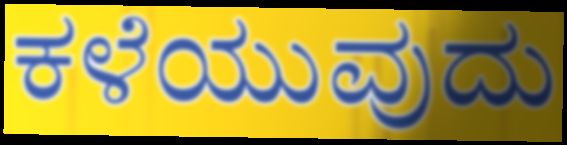
ಕಳೆಯುವುದು